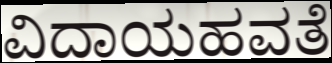
ವಿದಾಯಹವತೆ